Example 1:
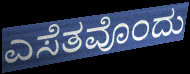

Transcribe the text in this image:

ಎಸೆತವೊಂದು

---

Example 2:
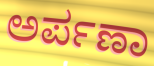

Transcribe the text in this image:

ಅರ್ಪಣಾ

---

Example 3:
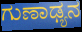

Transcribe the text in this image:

ಗುಣಾಢ್ಯನ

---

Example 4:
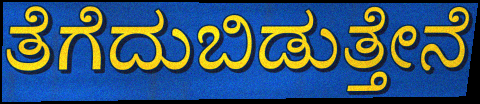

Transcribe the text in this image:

ತೆಗೆದುಬಿಡುತ್ತೇನೆ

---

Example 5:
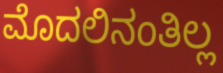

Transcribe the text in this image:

ಮೊದಲಿನಂತಿಲ್ಲ